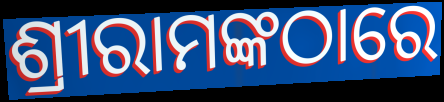
ଶ୍ରୀରାମଙ୍କଠାରେ